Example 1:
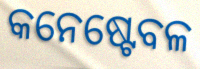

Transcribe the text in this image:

କନେଷ୍ଟେବଳ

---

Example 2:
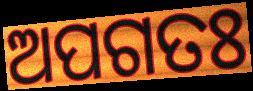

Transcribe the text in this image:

ଅପଗତଃ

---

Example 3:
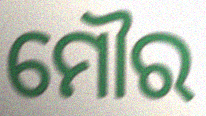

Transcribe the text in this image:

ମୌର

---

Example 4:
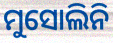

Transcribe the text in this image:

ମୁସୋଲିନି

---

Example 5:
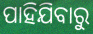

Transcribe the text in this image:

ପାହିଯିବାରୁ